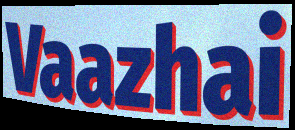
Vaazhai